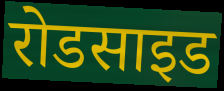
रोडसाइड